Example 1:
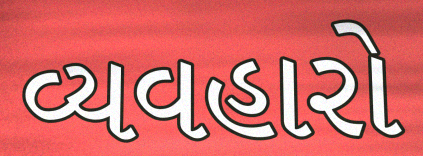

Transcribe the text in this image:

વ્યવહારો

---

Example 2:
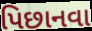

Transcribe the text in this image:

પિછાનવા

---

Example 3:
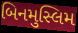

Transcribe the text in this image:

બિનમુસ્લિમ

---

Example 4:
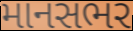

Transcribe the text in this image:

માનસભર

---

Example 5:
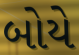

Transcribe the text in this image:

બોયે